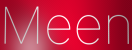
Meen